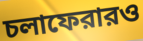
চলাফেরারও